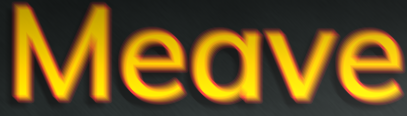
Meave